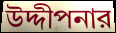
উদ্দীপনার